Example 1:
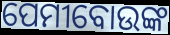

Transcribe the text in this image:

ପେମୀବୋଉଙ୍କ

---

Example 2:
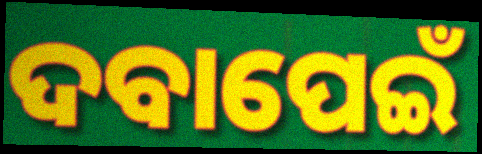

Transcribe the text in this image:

ଦବାପେଇଁ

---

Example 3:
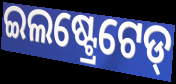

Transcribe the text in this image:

ଇଲଷ୍ଟ୍ରେଟେଡ୍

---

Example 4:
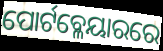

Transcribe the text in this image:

ପୋର୍ଟବ୍ଳେୟାରରେ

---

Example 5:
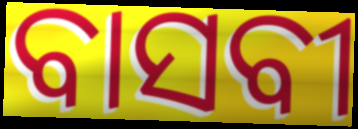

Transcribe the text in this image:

ବାସବୀ